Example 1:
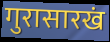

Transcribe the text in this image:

गुरासारखं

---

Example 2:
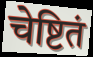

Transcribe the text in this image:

चेष्टितं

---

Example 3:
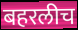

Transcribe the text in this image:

बहरलीच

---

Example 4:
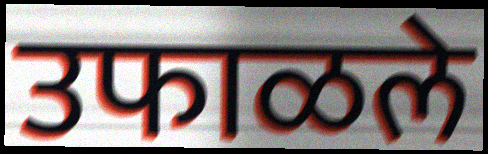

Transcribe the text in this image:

उफाळले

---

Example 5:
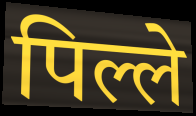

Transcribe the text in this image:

पिल्ले